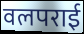
वलपराई